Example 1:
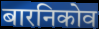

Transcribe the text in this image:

बारनिकोव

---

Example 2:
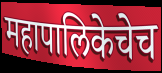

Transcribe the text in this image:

महापालिकेचेच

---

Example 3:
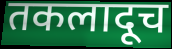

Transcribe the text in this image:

तकलादूच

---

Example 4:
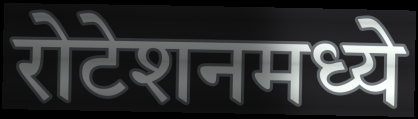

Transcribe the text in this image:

रोटेशनमध्ये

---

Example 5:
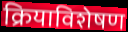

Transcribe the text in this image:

क्रियाविशेषण